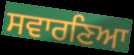
ਸਵਾਰਣਿਆ